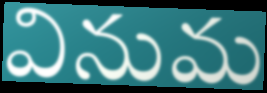
వినుమ